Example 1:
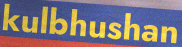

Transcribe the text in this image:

kulbhushan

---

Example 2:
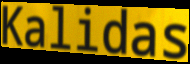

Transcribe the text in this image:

Kalidas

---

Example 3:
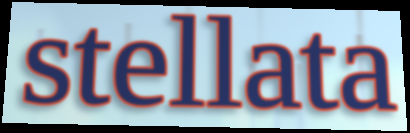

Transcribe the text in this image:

stellata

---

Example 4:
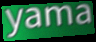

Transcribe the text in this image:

yama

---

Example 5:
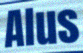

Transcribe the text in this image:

Alus